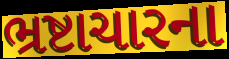
ભ્રષ્ટાચારના